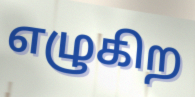
எழுகிற